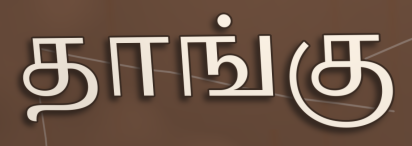
தாங்கு